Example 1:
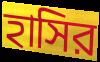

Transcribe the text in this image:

হাসির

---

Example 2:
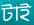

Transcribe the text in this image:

টাই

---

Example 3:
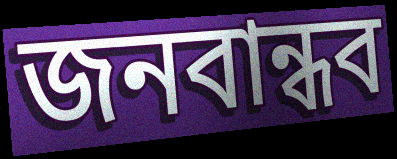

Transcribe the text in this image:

জনবান্ধব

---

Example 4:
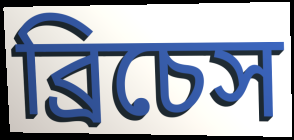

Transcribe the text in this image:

ব্রিচেস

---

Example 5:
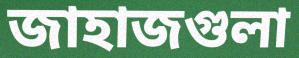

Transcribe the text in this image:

জাহাজগুলা